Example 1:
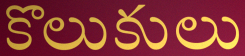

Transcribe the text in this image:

కొలుకులు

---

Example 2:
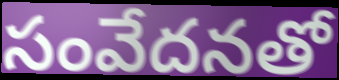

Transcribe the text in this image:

సంవేదనతో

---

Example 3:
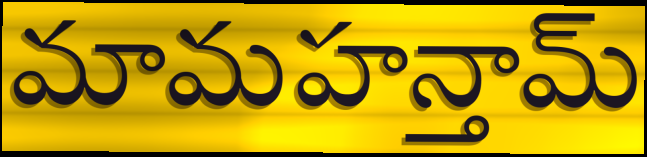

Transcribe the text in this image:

మామహన్తామ్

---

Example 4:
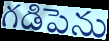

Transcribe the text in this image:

గడిపెను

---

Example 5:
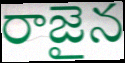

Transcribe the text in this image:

రాజైన